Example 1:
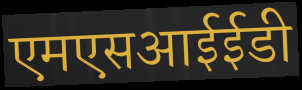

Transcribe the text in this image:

एमएसआईईडी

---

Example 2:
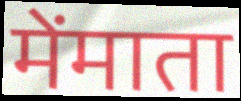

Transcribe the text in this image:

मेंमाता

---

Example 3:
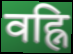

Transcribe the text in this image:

वह्नि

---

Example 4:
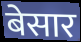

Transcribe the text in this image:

बेसार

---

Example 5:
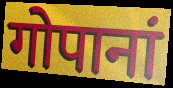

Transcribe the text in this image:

गोपानां